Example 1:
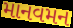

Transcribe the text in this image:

માનવમન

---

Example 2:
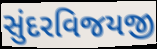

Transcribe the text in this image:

સુંદરવિજયજી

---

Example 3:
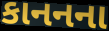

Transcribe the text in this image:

કાનનના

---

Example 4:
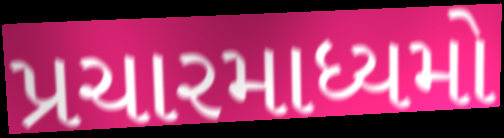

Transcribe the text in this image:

પ્રચારમાધ્યમો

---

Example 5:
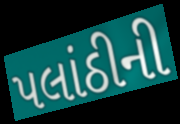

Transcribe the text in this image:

પલાંઠીની